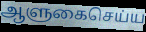
ஆளுகைசெய்ய